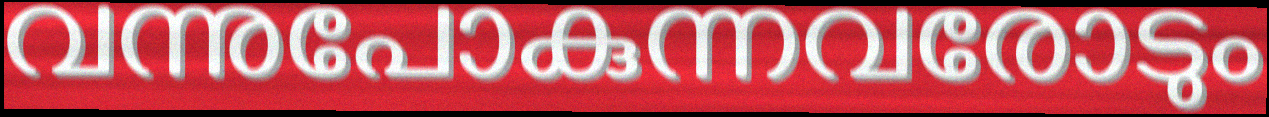
വന്നുപോകുന്നവരോടും